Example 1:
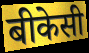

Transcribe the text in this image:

बीकेसी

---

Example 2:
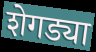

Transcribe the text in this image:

शेगड्या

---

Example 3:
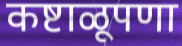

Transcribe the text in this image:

कष्टाळूपणा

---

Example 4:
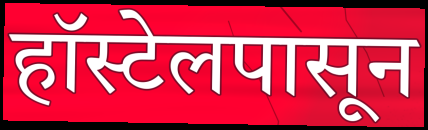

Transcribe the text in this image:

हॉस्टेलपासून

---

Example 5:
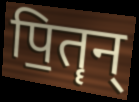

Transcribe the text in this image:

पि॒तॄन्